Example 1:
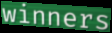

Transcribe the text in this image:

winners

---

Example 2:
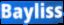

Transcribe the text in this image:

Bayliss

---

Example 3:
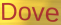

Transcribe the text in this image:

Dove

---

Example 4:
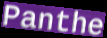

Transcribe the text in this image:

Panthe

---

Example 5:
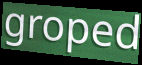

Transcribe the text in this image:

groped